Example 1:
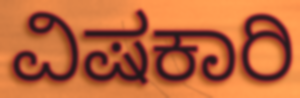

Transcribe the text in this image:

ವಿಷಕಾರಿ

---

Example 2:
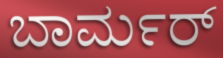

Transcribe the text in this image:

ಬಾರ್ಮರ್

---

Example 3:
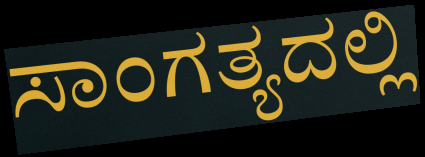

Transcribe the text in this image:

ಸಾಂಗತ್ಯದಲ್ಲಿ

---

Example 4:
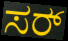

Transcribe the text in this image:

ಸರ‍್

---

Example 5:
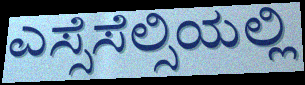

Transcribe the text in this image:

ಎಸ್ಸೆಸೆಲ್ಸಿಯಲ್ಲಿ